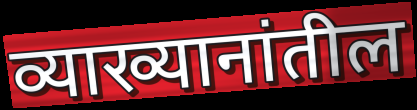
व्याख्यानांतील